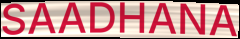
SAADHANA